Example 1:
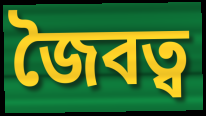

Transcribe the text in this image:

জৈবত্ব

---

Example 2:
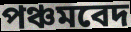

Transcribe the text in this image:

পঞ্চমবেদ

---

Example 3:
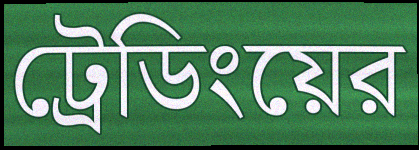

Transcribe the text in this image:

ট্রেডিংয়ের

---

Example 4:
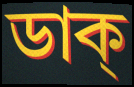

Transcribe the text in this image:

ডাক্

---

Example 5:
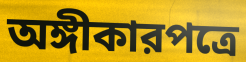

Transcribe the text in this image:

অঙ্গীকারপত্রে